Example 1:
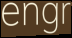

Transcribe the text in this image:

engr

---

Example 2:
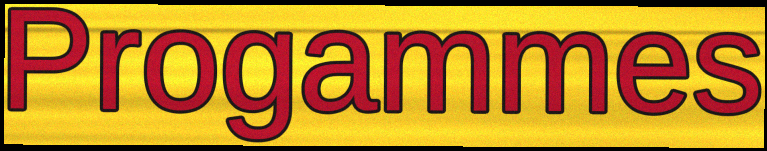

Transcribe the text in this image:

Progammes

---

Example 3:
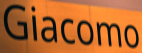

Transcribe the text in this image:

Giacomo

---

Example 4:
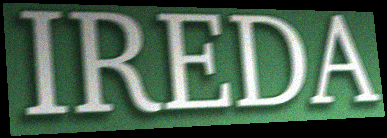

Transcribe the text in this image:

IREDA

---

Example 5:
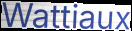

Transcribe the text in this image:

Wattiaux